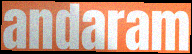
andaram